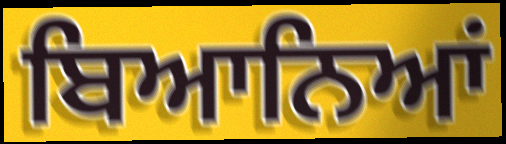
ਬਿਆਨਿਆਂ